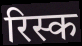
रिस्क